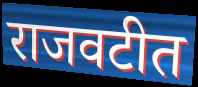
राजवटीत